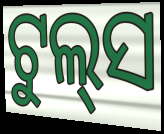
ଟୁଲ୍‌ସ